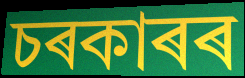
চৰকাৰৰ